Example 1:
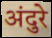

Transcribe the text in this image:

अंदुरे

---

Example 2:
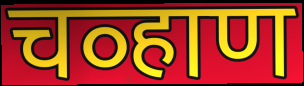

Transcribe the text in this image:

चव्हाण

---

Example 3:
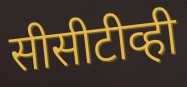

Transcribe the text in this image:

सीसीटीव्ही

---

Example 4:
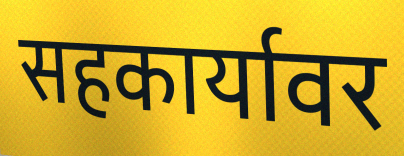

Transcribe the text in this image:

सहकार्यावर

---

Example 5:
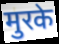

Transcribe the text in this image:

मुरके